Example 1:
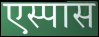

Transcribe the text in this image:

एस्पास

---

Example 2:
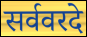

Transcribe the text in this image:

सर्ववरदे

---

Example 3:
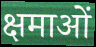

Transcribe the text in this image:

क्षमाओं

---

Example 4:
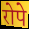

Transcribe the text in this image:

रोपे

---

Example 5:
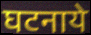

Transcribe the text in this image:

घटनाये